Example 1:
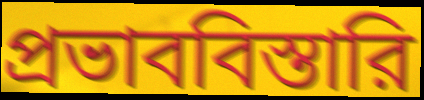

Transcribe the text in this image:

প্রভাববিস্তারি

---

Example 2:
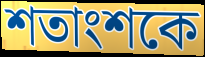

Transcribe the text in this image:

শতাংশকে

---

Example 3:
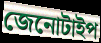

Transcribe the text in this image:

জেনোটাইপ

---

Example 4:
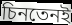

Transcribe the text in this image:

চিনতেনই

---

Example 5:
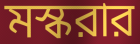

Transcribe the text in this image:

মস্করার